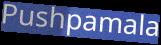
Pushpamala